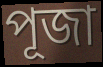
পূজা